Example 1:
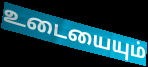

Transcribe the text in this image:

உடையையும்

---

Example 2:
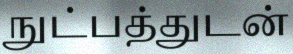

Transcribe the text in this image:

நுட்பத்துடன்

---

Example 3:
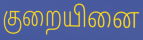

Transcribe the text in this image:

குறையினை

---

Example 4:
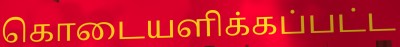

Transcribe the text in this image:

கொடையளிக்கப்பட்ட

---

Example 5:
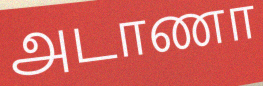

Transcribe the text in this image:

அடாணா